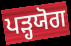
ਪੜ੍ਹਯੋਗ